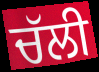
ਚੱਲੀ